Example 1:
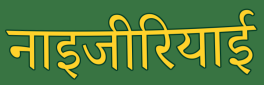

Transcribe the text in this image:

नाइजीरियाई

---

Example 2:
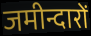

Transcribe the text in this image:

जमीन्दारों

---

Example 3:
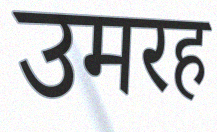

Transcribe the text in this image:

उमरह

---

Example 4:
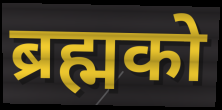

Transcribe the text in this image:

ब्रह्मको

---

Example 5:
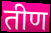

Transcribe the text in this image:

तीण